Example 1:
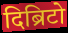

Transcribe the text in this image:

दिब्रिटो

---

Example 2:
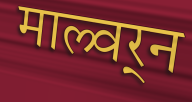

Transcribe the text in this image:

माल्वर्न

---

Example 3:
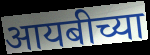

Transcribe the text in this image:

आयबीच्या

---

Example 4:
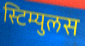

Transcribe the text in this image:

स्टिम्युलस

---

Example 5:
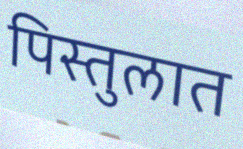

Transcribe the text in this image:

पिस्तुलात